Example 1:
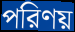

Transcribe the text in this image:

পরিণয়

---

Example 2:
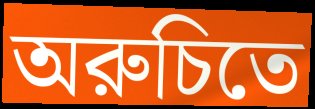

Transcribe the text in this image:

অরুচিতে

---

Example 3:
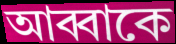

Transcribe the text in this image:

আব্বাকে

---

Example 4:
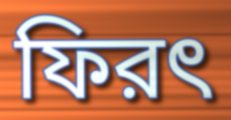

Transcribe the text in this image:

ফিরৎ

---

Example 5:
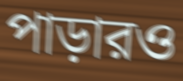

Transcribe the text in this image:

পাড়ারও